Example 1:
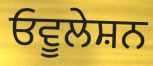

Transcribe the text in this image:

ਓਵੂਲੇਸ਼ਨ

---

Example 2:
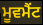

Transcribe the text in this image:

ਮੂਵਮੈਂਟ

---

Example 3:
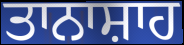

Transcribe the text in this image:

ਤਾਨਾਸ਼ਾਹ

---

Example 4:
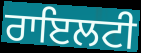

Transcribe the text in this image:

ਰਾਇਲਟੀ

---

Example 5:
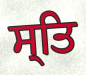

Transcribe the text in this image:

ਸ੍ਤਿ